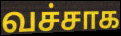
வச்சாக